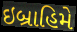
ઇબ્રાહિમે